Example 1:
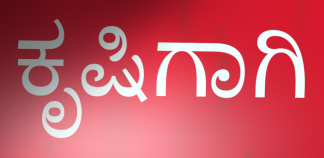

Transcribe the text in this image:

ಕೃಷಿಗಾಗಿ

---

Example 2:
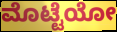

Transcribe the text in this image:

ಮೊಟ್ಟೆಯೋ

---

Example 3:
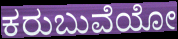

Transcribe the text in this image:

ಕರುಬುವೆಯೋ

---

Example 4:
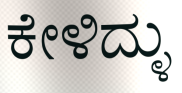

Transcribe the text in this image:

ಕೇಳಿದ್ಳು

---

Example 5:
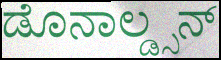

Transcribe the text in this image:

ಡೊನಾಲ್ಡ್ಸನ್